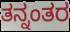
ತನ್ನಂತರ